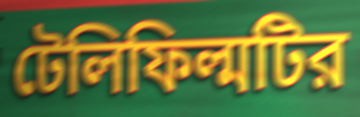
টেলিফিল্মটির